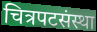
चित्रपटसंस्था